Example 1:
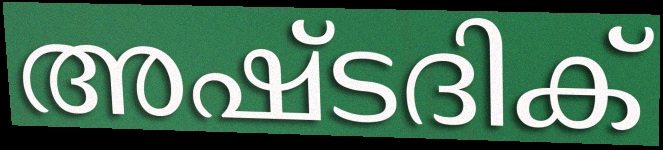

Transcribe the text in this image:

അഷ്ടദിക്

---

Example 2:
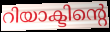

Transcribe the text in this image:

റിയാക്ടിന്റെ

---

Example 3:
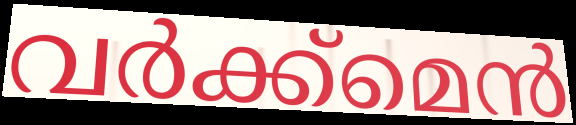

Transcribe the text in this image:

വർക്ക്മെൻ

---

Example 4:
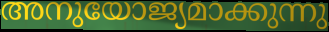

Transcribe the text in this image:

അനുയോജ്യമാക്കുന്നു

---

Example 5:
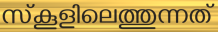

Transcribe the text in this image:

സ്‌കൂളിലെത്തുന്നത്